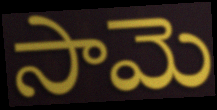
సామె